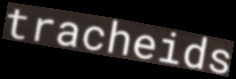
tracheids